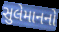
સુલેમાનનો